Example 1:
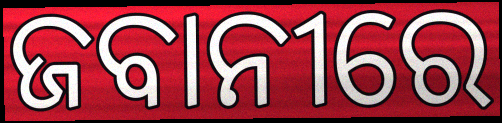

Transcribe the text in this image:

ଜବାନୀରେ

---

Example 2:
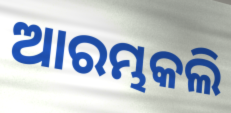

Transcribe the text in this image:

ଆରମ୍ଭକଲି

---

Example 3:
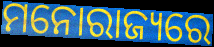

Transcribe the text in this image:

ମନୋରାଜ୍ୟରେ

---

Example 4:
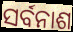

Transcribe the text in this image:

ସର୍ବନାଶ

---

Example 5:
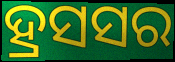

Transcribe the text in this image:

ହ୍ରସସର